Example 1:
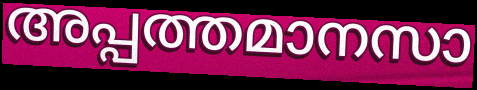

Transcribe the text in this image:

അപ്പത്തമാനസാ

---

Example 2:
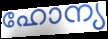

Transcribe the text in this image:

ഹോന്യ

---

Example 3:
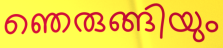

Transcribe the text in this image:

ഞെരുങ്ങിയും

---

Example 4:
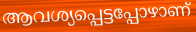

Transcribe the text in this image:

ആവശ്യപ്പെട്ടപ്പോഴാണ്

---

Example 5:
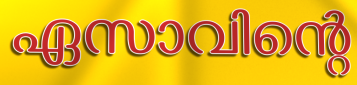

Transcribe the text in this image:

ഏസാവിന്റെ